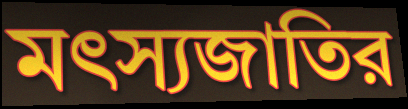
মৎস্যজাতির